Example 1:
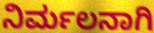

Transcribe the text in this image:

ನಿರ್ಮಲನಾಗಿ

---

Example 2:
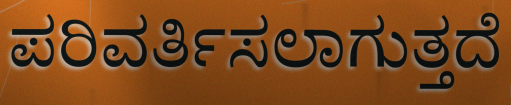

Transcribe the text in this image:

ಪರಿವರ್ತಿಸಲಾಗುತ್ತದೆ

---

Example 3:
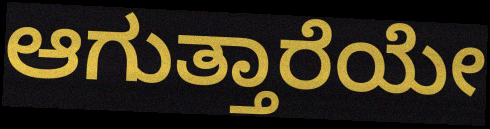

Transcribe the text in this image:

ಆಗುತ್ತಾರೆಯೇ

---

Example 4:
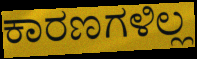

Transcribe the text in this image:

ಕಾರಣಗಳಿಲ್ಲ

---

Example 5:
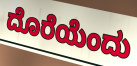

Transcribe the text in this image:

ದೊರೆಯೆಂದು